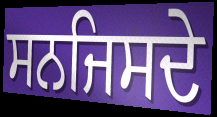
ਸਨਜਿਸਦੇ